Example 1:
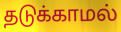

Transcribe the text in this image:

தடுக்காமல்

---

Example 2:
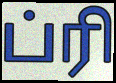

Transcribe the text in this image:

ப்ரி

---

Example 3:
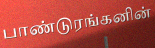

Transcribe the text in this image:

பாண்டுரங்கனின்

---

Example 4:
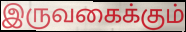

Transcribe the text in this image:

இருவகைக்கும்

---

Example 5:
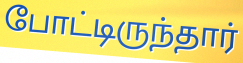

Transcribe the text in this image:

போட்டிருந்தார்